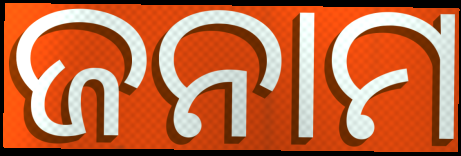
ଜନାମ